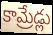
కామ్రేడ్లు